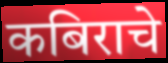
कबिराचे